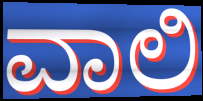
ವಾಲಿ